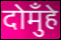
दोमुँहे